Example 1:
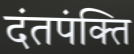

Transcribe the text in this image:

दंतपंक्ति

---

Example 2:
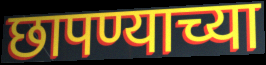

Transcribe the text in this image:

छापण्याच्या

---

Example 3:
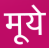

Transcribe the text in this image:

मूये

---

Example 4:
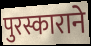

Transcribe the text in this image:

पुरस्काराने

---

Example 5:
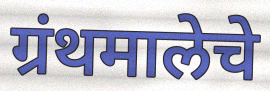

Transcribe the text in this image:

ग्रंथमालेचे